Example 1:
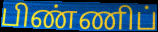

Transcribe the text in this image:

பிண்ணிப்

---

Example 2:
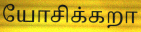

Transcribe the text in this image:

யோசிக்கறா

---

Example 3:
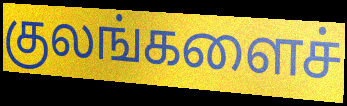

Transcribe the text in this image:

குலங்களைச்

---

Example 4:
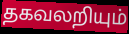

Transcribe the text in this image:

தகவலறியும்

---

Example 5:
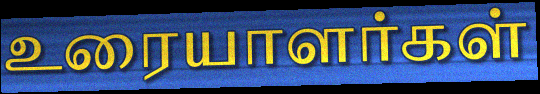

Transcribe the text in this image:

உரையாளர்கள்